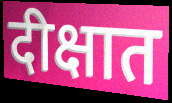
दीक्षात